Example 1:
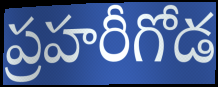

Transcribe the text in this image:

ప్రహరీగోడ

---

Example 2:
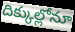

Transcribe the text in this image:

దిక్కుల్లోనూ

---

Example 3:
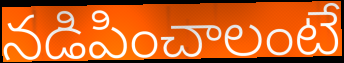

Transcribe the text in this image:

నడిపించాలంటే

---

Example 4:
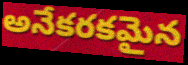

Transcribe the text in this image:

అనేకరకమైన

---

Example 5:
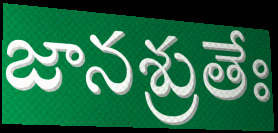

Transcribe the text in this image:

జానశ్రుతేః